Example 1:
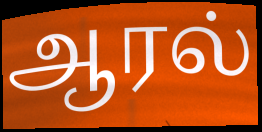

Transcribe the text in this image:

ஆரல்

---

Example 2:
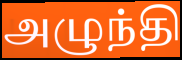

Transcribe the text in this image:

அழுந்தி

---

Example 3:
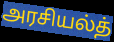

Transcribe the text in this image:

அரசியல்த்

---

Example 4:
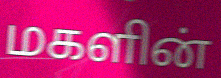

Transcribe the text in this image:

மகளின்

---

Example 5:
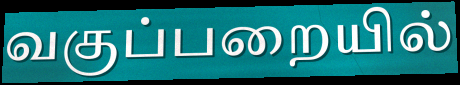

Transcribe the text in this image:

வகுப்பறையில்